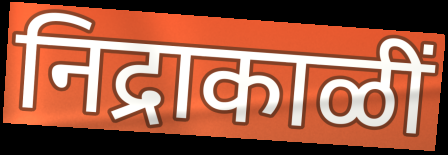
निद्राकाळीं